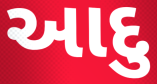
આદુ